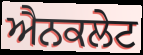
ਐਨਕਲੇਟ